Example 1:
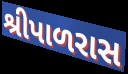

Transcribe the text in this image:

શ્રીપાળરાસ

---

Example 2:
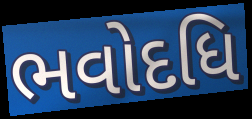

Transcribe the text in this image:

ભવોદધિ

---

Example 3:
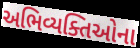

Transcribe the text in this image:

અભિવ્યક્તિઓના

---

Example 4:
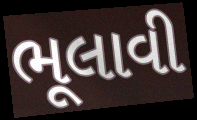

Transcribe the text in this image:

ભૂલાવી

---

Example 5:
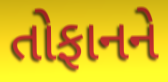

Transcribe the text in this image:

તોફાનને